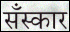
सँस्कार